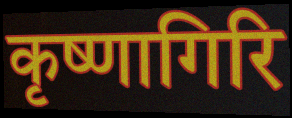
कृष्णागिरि